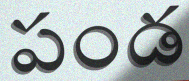
పండ